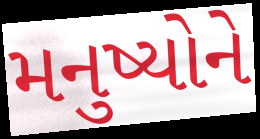
મનુષ્યોને